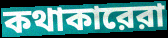
কথাকারেরা